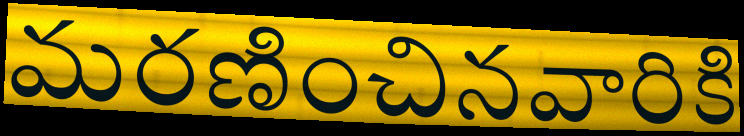
మరణించినవారికి